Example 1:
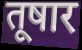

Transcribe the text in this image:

तूषार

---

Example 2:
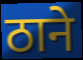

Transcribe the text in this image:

ठाने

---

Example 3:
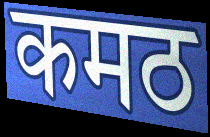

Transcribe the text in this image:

कमठ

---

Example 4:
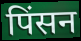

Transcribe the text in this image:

पिंसन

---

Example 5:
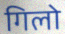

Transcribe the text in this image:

गिलो